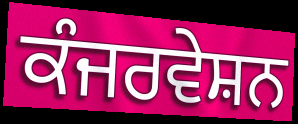
ਕੰਜਰਵੇਸ਼ਨ